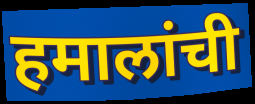
हमालांची